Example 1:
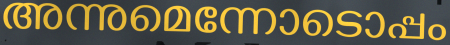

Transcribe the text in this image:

അന്നുമെന്നോടൊപ്പം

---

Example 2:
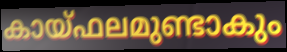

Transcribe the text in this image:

കായ്ഫലമുണ്ടാകും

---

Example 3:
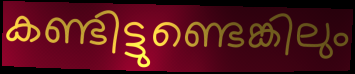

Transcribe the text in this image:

കണ്ടിട്ടുണ്ടെങ്കിലും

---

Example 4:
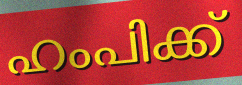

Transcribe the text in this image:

ഹംപിക്ക്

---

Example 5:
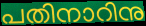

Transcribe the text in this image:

പതിനാറിനു